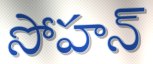
సోహన్